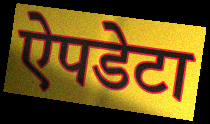
ऐपडेटा